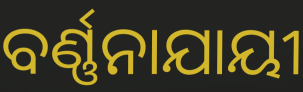
ବର୍ଣ୍ଣନାଯାୟୀ